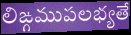
లిఙ్గముపలభ్యతే